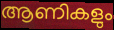
ആണികളും